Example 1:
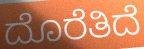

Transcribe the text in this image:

ದೊರೆತಿದೆ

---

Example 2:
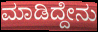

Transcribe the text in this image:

ಮಾಡಿದ್ದೇನು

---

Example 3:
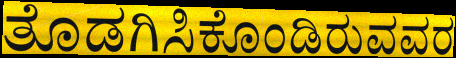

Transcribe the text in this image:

ತೊಡಗಿಸಿಕೊಂಡಿರುವವರ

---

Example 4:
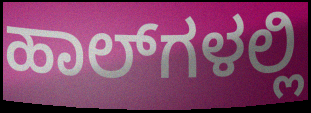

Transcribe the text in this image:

ಹಾಲ್‌ಗಳಲ್ಲಿ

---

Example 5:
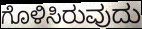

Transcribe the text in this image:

ಗೊಳಿಸಿರುವುದು